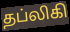
தப்லிகி